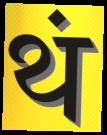
थं